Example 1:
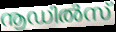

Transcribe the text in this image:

നൂഡിൽസ്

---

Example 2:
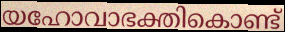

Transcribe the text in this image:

യഹോവാഭക്തികൊണ്ട്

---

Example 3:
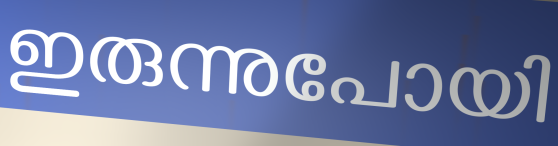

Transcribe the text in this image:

ഇരുന്നുപോയി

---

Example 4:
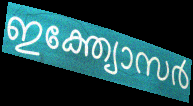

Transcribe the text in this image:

ഇക്ത്യോസർ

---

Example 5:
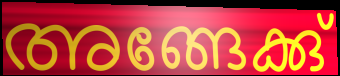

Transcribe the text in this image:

അങ്ങേക്കു്